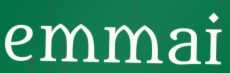
emmai